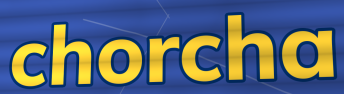
chorcha